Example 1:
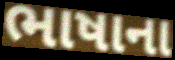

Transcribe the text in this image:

ભાષાના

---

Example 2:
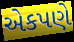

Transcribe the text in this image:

એકપણે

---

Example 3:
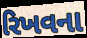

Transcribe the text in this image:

રિખવના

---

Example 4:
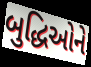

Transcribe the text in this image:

બુદ્ધિઓને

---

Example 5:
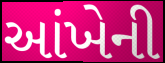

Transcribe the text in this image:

આંખેની